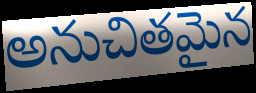
అనుచితమైన